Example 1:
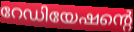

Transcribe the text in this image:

റേഡിയേഷന്റെ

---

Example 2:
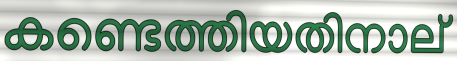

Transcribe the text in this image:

കണ്ടെത്തിയതിനാല്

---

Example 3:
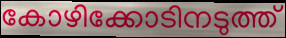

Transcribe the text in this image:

കോഴിക്കോടിനടുത്ത്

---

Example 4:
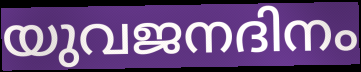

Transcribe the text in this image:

യുവജനദിനം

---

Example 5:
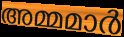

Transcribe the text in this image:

അമ്മമാർ